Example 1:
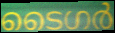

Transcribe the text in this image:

ടൈഗർ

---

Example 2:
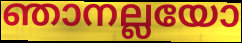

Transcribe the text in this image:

ഞാനല്ലയോ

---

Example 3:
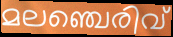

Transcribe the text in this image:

മലഞ്ചെരിവ്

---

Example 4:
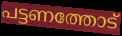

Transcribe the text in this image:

പട്ടണത്തോട്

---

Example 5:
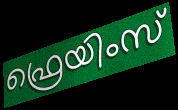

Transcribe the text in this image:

ഫ്രെയിംസ്